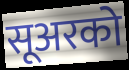
सूअरको